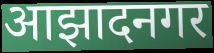
आझादनगर